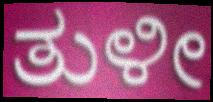
ತುಳೀ